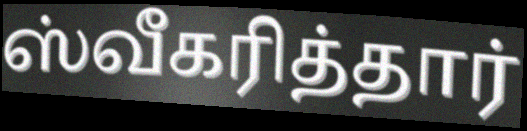
ஸ்வீகரித்தார்